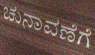
ಚುನಾವಣೆಗೆ